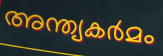
അന്ത്യകർമം